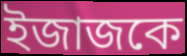
ইজাজকে